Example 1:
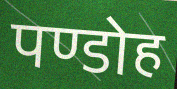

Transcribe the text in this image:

पण्डोह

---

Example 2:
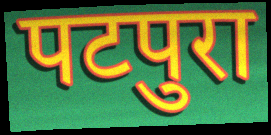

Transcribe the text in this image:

पटपुरा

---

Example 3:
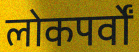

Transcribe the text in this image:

लोकपर्वों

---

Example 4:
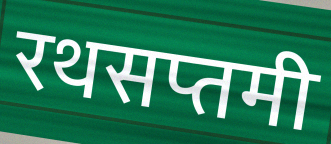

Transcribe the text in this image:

रथसप्तमी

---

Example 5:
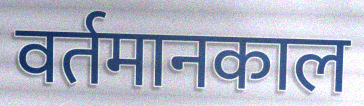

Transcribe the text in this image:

वर्तमानकाल